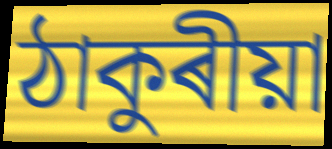
ঠাকুৰীয়া